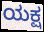
ಯಕ್ಷ